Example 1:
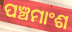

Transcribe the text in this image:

ପଞ୍ଚମାଂଶ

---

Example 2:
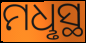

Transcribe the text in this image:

ମଧୢସ୍ଥ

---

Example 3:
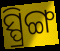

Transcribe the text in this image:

ସ୍ପ୍ରିଙ୍ଗ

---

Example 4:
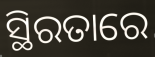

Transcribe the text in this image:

ସ୍ଥିରତାରେ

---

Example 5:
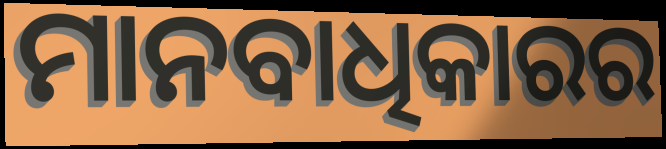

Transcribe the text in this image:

ମାନବାଧିକାରର